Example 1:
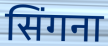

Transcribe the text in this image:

सिंगना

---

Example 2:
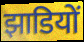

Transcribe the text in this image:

झाडियों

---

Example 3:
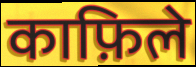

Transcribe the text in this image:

काफ़िले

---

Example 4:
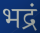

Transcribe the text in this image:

भद्रं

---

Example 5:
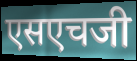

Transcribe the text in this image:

एसएचजी